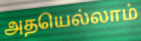
அதயெல்லாம்